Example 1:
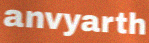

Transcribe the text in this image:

anvyarth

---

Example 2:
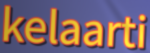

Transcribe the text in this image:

kelaarti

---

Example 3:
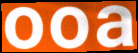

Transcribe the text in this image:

ooa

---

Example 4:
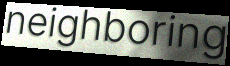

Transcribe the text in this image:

neighboring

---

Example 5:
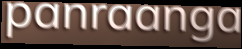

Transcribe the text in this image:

panraanga